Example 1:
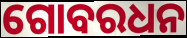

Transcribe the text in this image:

ଗୋବରଧନ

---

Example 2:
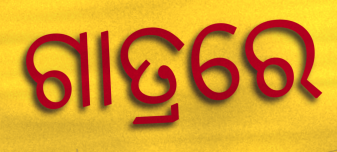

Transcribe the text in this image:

ଗାତ୍ରରେ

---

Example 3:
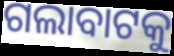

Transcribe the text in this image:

ଗଲାବାଟକୁ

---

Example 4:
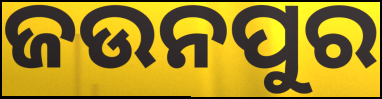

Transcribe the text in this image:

ଜଉନପୁର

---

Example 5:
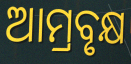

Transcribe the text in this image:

ଆମ୍ରବୃକ୍ଷ